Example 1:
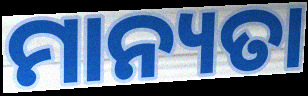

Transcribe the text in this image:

ମାନ୍ୟତା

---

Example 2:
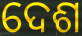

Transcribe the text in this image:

ଦେଶ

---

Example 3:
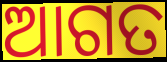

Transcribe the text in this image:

ଆଗତ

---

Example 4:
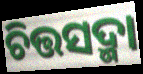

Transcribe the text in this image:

ଚିତ୍ତସଦ୍ମା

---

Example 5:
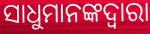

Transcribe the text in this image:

ସାଧୁମାନଙ୍କଦ୍ଵାରା